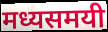
मध्यसमयी